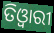
ତିଓ୍ଵାରୀ